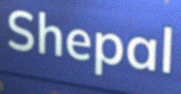
Shepal